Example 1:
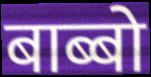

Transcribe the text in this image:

बाब्बो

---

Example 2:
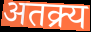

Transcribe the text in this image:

अतक्र्य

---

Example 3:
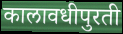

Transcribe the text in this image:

कालावधीपुरती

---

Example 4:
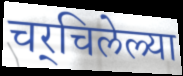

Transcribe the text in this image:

चर्चिलेल्या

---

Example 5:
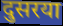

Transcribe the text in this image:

दुसरया